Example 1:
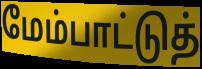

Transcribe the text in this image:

மேம்பாட்டுத்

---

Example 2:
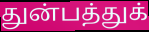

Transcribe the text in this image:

துன்பத்துக்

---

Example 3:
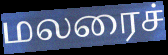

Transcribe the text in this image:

மலரைச்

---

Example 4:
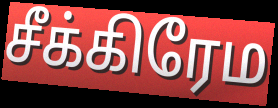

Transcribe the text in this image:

சீக்கிரேம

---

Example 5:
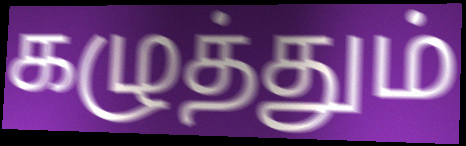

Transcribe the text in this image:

கழுத்தும்